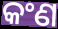
କଂଣ